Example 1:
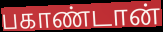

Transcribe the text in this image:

பகாண்டான்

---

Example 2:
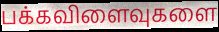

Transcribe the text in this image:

பக்கவிளைவுகளை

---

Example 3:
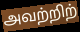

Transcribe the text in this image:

அவற்றிற்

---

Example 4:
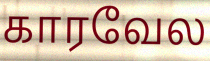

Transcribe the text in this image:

காரவேல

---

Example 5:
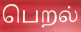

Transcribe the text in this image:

பெறல்